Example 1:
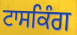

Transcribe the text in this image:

ਟਾਸਕਿੰਗ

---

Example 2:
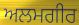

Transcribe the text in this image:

ਅਲਮਗੀਰ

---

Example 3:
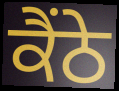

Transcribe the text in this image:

ਕੈਂਠੇ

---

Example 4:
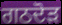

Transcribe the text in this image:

ਗਠਦੋੜ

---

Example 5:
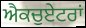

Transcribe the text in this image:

ਐਕਚੁਏਟਰਾਂ